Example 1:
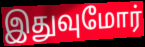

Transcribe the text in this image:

இதுவுமோர்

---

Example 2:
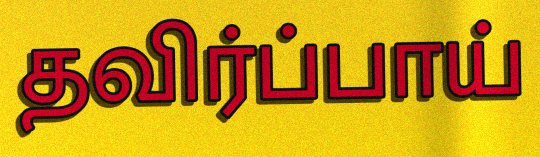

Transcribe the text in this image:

தவிர்ப்பாய்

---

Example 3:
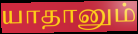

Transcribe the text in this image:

யாதானும்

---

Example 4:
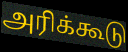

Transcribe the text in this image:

அரிக்கூடு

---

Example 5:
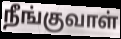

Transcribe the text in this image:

நீங்குவாள்